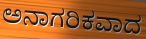
ಅನಾಗರಿಕವಾದ